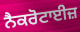
ਨੈਕਰੋਟਾਈਜ਼